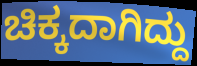
ಚಿಕ್ಕದಾಗಿದ್ದು